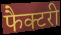
फैक्टरी